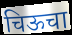
चिऊचा